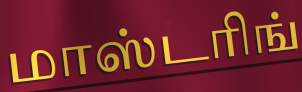
மாஸ்டரிங்